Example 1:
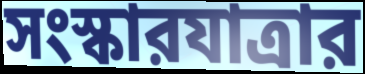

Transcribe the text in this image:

সংস্কারযাত্রার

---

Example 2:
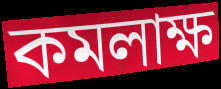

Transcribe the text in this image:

কমলাক্ষ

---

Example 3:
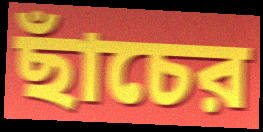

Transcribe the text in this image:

ছাঁচের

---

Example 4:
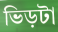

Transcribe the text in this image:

ভিড়টা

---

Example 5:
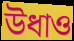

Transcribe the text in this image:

উধাও